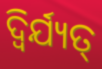
ଦ୍ୱିର୍ଯ୍ୟତ୍